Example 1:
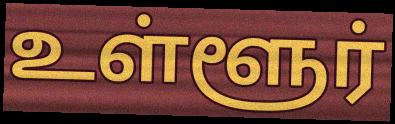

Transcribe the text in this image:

உள்ளூர்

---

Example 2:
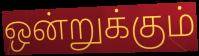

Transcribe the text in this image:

ஒன்றுக்கும்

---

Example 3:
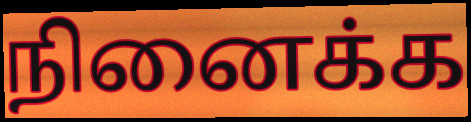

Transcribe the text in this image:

நினைக்க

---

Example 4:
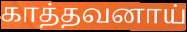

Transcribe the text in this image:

காத்தவனாய்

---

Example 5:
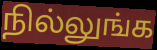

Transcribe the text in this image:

நில்லுங்க